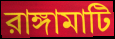
রাঙ্গামাটি